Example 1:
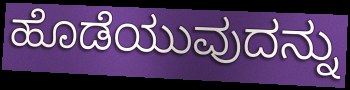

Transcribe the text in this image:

ಹೊಡೆಯುವುದನ್ನು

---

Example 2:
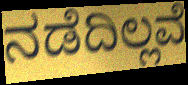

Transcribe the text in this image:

ನಡೆದಿಲ್ಲವೆ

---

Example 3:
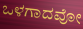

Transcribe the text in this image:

ಒಳಗಾದವೋ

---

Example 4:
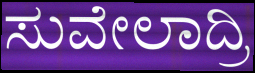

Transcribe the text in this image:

ಸುವೇಲಾದ್ರಿ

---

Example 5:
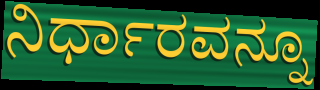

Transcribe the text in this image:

ನಿರ್ಧಾರವನ್ನೂ